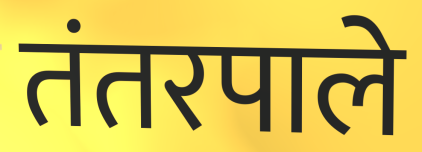
तंतरपाले